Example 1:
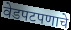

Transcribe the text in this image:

वेडपटपणाचे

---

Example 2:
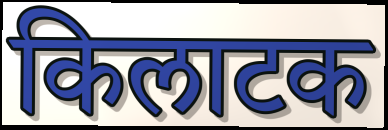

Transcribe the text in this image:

किलाटक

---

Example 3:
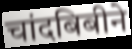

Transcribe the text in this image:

चांदबिबीने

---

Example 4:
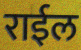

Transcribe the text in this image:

राईल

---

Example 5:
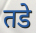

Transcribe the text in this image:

तडे